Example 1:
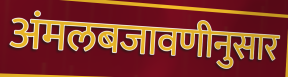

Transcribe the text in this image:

अंमलबजावणीनुसार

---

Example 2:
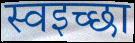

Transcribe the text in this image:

स्वइच्छा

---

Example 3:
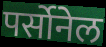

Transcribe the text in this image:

पर्सोनेल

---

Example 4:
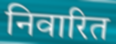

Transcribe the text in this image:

निवारित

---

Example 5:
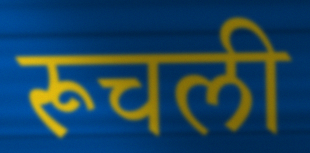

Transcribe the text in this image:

रूचली